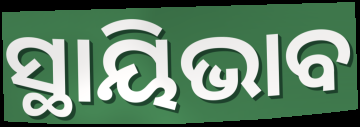
ସ୍ଥାୟିଭାବ